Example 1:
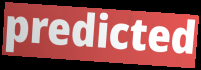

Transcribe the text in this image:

predicted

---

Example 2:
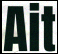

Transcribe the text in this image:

Ait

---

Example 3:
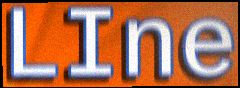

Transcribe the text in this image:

LIne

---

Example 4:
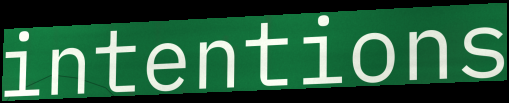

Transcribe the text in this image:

intentions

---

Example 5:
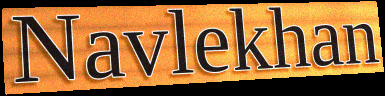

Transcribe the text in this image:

Navlekhan